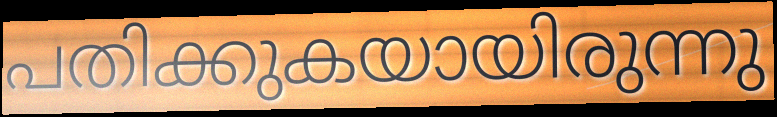
പതിക്കുകയായിരുന്നു